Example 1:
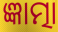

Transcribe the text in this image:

ଜ୍ଞାତ୍ମା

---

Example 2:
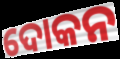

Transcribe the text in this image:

ଦୋକନ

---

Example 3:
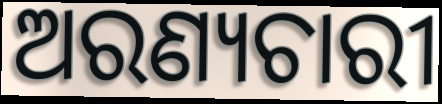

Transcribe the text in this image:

ଅରଣ୍ୟଚାରୀ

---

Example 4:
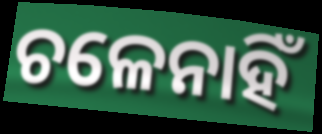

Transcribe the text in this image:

ଚଳେନାହିଁ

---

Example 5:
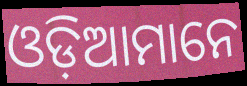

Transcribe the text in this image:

ଓଡ଼ିଆମାନେ